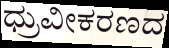
ಧ್ರುವೀಕರಣದ